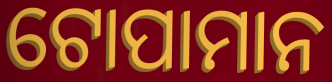
ଟୋପାମାନ